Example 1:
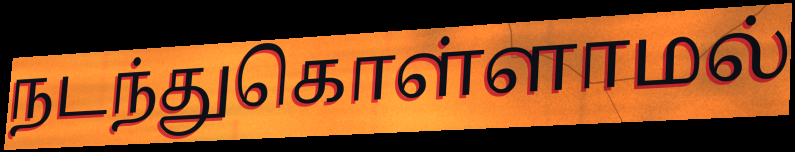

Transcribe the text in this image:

நடந்துகொள்ளாமல்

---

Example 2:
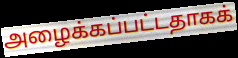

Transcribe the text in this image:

அழைக்கப்பட்டதாகக்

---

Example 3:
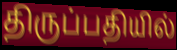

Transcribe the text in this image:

திருப்பதியில்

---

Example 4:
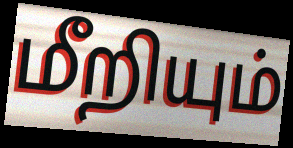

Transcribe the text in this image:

மீறியும்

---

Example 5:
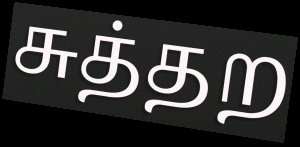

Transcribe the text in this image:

சுத்தற